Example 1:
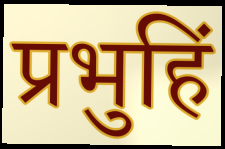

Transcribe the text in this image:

प्रभुहिं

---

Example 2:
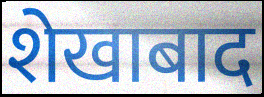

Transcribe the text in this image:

शेखाबाद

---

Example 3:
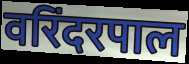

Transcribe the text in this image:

वरिंदरपाल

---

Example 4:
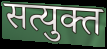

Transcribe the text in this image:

सत्युक्त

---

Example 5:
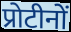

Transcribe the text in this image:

प्रोटीनों